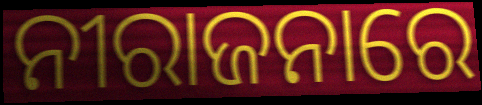
ନୀରାଜନାରେ